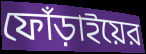
ফোঁড়াইয়ের